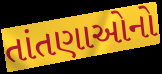
તાંતણાઓનો